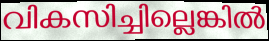
വികസിച്ചില്ലെങ്കിൽ